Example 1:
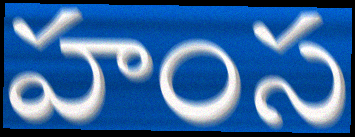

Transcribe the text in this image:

హంస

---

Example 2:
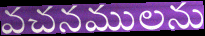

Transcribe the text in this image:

వచనములను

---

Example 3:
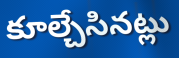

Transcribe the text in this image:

కూల్చేసినట్లు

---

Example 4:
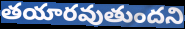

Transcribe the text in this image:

తయారవుతుందని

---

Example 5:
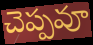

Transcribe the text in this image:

చెప్పవూ